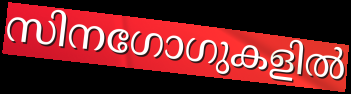
സിനഗോഗുകളിൽ